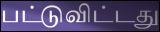
பட்டுவிட்டது